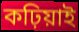
কঢ়িয়াই